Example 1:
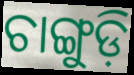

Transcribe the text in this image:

ଚାଙ୍ଗୁଡ଼ି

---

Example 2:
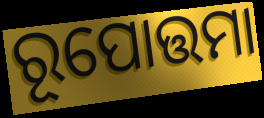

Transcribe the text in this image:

ରୂପୋତ୍ତମା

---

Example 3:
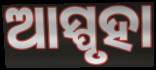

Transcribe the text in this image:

ଆସ୍ପୃହା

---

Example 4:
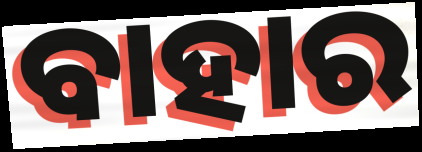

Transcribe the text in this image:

ବାହାର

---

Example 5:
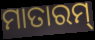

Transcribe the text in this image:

ମାତାରମ୍